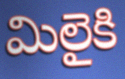
మిలైకి